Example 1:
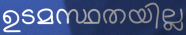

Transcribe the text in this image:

ഉടമസ്ഥതയില്ല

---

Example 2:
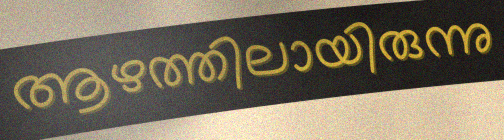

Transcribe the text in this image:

ആഴത്തിലായിരുന്നു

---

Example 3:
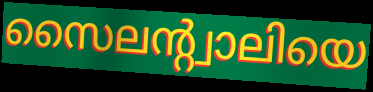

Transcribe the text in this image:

സൈലന്റ്വാലിയെ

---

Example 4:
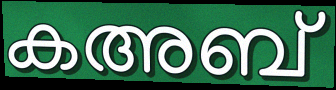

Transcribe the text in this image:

കഅബ്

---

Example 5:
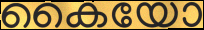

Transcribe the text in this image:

കൈയോ